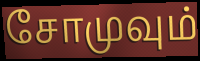
சோமுவும்